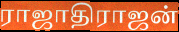
ராஜாதிராஜன்